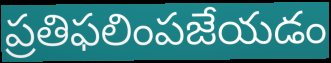
ప్రతిఫలింపజేయడం